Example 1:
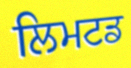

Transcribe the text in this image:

ਲਿਮਟਡ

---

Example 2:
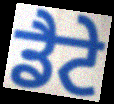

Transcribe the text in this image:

ਡੈਟੇ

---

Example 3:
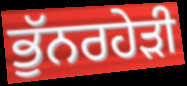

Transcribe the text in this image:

ਭੁੱਨਰਹੇੜੀ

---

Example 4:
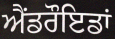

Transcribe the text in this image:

ਐਂਡਰੌਇਡਾਂ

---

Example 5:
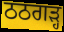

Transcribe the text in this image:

ਠਠਗੜ੍ਹ